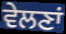
ਵੇਲਣਾਂ